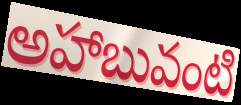
అహాబువంటి